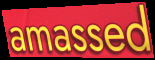
amassed